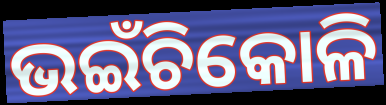
ଭଇଁଚିକୋଳି